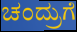
ಚಂದ್ರುಗೆ